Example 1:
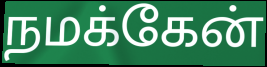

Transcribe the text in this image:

நமக்கேன்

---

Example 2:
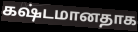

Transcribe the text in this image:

கஷ்டமானதாக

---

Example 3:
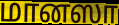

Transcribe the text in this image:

மானஸா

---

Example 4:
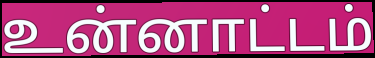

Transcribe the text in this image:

உன்னாட்டம்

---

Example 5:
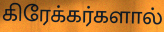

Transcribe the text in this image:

கிரேக்கர்களால்